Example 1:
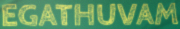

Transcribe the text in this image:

EGATHUVAM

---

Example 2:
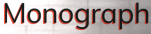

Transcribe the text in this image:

Monograph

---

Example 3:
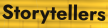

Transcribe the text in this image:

Storytellers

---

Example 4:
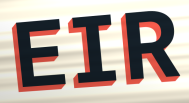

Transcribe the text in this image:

EIR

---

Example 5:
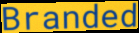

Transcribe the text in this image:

Branded